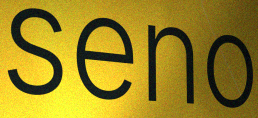
seno